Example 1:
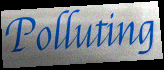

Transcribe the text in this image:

Polluting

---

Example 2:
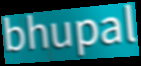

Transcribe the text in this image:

bhupal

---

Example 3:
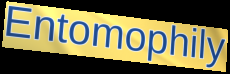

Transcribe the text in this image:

Entomophily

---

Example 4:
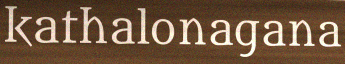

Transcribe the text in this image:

kathalonagana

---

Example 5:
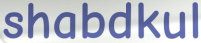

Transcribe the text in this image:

shabdkul